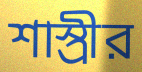
শাস্ত্রীর